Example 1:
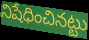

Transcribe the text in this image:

నిషేధించినట్టు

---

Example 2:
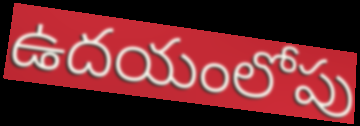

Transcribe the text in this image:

ఉదయంలోపు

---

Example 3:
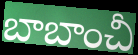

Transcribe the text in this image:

బాబాంచీ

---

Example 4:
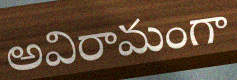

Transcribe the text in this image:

అవిరామంగా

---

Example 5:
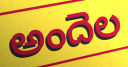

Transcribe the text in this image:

అందెల